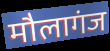
मौलागंज